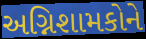
અગ્નિશામકોને